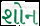
શોન